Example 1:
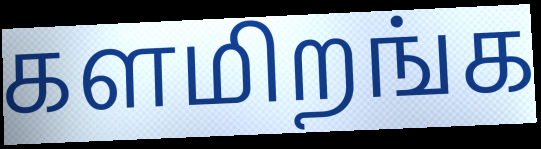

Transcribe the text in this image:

களமிறங்க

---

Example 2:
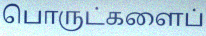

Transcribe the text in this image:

பொருட்களைப்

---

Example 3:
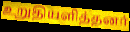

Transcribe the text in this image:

உறுதியளித்தனர்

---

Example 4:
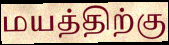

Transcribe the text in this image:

மயத்திற்கு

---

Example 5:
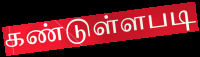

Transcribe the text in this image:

கண்டுள்ளபடி